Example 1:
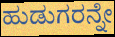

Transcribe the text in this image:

ಹುಡುಗರನ್ನೇ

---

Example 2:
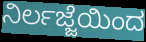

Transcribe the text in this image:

ನಿರ್ಲಜ್ಜೆಯಿಂದ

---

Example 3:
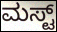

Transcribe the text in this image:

ಮಸ್ಟ್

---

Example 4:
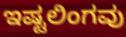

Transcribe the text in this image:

ಇಷ್ಟಲಿಂಗವು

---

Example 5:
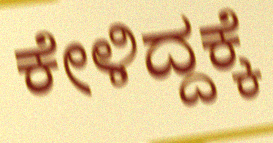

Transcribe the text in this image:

ಕೇಳಿದ್ದಕ್ಕೆ